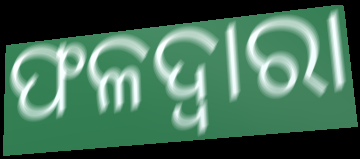
ଫଳଦ୍ୱାରା